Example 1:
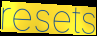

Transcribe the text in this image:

resets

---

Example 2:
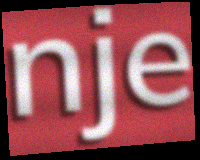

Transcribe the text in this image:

nje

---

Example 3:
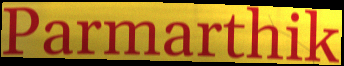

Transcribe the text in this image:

Parmarthik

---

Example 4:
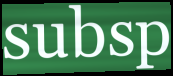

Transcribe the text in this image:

subsp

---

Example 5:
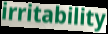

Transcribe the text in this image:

irritability